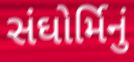
સંઘોર્મિનું